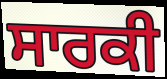
ਸਾਰਕੀ